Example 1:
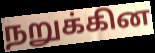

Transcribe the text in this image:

நறுக்கின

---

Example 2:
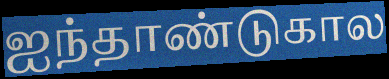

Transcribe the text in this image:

ஐந்தாண்டுகால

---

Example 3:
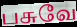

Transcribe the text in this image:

பசுவே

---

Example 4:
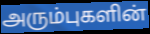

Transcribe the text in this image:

அரும்புகளின்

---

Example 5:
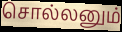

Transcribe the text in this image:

சொல்லனும்